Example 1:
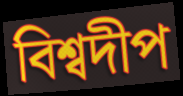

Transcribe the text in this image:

বিশ্বদীপ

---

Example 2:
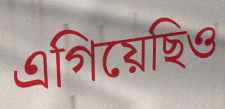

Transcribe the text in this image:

এগিয়েছিও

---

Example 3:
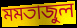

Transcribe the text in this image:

মমতাজুল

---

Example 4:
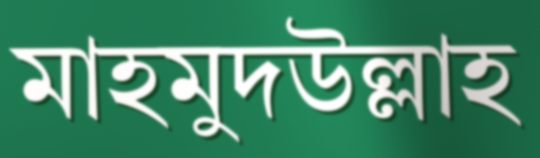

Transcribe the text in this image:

মাহমুদউল্লাহ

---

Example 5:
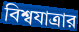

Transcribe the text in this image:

বিশ্বযাত্রার